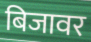
बिजावर